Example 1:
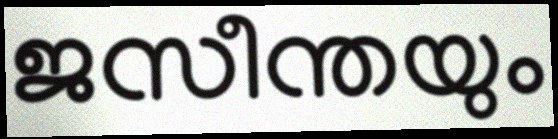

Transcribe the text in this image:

ജസീന്തയും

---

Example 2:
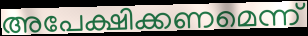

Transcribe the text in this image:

അപേക്ഷിക്കണമെന്ന്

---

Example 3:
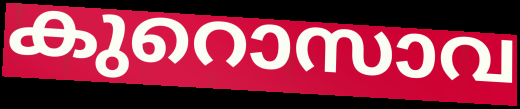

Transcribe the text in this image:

കുറൊസാവ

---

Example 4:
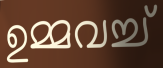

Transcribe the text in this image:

ഉമ്മവച്ച്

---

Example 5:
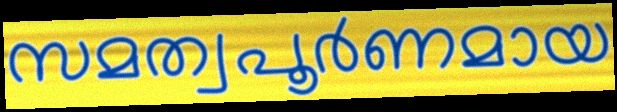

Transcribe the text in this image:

സമത്വപൂർണമായ